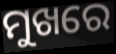
ମୁଖରେ